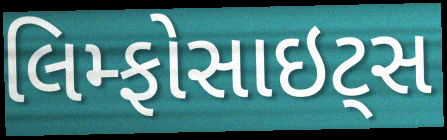
લિમ્ફોસાઇટ્સ